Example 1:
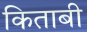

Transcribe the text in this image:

किताबी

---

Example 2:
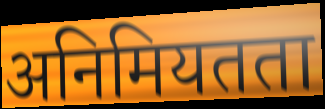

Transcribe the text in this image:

अनिमियतता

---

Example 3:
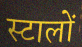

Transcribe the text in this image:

स्टालों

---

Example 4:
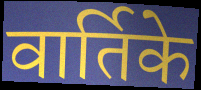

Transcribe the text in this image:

वार्तिके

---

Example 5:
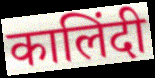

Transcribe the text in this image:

कालिंदी